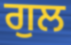
ਗੁਲ